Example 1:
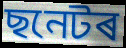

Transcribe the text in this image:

ছনেটৰ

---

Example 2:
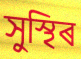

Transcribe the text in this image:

সুস্থিৰ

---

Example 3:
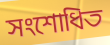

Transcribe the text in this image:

সংশোধিত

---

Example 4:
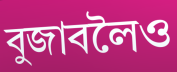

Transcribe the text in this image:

বুজাবলৈও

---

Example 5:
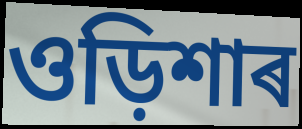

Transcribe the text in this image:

ওড়িশাৰ